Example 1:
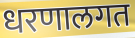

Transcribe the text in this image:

धरणालगत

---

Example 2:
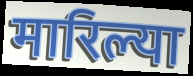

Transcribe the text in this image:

मारिल्या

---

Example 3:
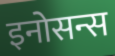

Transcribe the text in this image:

इनोसन्स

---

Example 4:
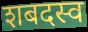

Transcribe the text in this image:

शबदस्व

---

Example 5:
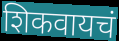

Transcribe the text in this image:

शिकवायचं